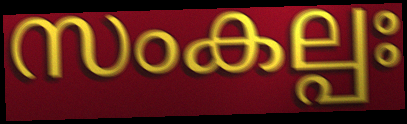
സംകല്പഃ